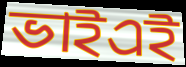
ভাইএই